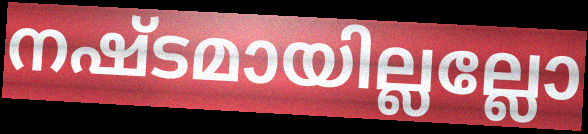
നഷ്ടമായില്ലല്ലോ